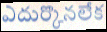
ఎదుర్కొనలేక